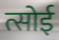
त्सोई